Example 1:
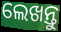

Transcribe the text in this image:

ଲେଖନ୍ତୁ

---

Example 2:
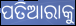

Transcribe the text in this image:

ପତିଆରାକୁ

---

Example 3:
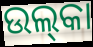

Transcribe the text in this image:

ଉଲ୍‍କା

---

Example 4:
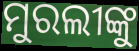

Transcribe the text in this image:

ମୁରଲୀଙ୍କୁ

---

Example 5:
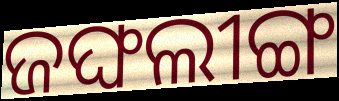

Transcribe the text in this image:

ଜଙ୍ଘଲୀଙ୍ଗ